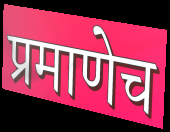
प्रमाणेच